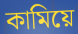
কামিয়ে